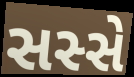
સસ્સે